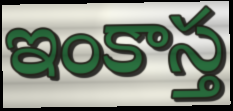
ఇంకాస్త